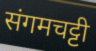
संगमचट्टी